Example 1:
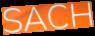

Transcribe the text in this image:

SACH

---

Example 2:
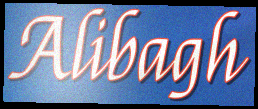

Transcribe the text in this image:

Alibagh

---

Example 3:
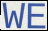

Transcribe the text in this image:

WE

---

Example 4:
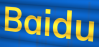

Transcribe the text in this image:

Baidu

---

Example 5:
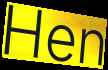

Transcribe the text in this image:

Hen